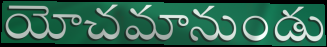
యోచమానుండు